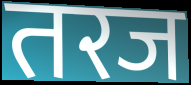
तरज